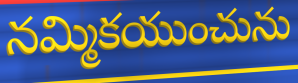
నమ్మికయుంచును